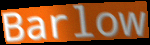
Barlow